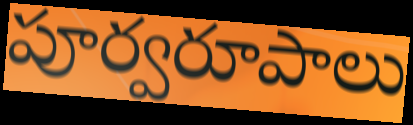
పూర్వరూపాలు